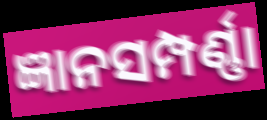
ଜ୍ଞାନସମ୍ପର୍ଣ୍ଣା